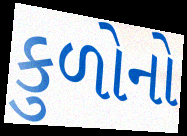
કુળોનો